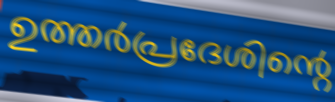
ഉത്തർപ്രദേശിന്റെ